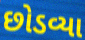
છોડવ્યા